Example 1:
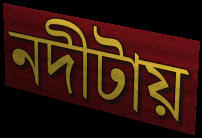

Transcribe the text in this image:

নদীটায়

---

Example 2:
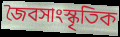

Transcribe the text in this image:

জৈবসাংস্কৃতিক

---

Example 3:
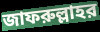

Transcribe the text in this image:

জাফরুল্লাহর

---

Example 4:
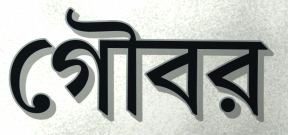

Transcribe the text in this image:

গৌবর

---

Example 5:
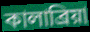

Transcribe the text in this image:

কালাব্রিয়া